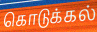
கொடுக்கல்